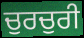
ਚੁਰਚੁਰੀ